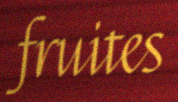
fruites